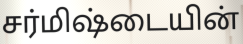
சர்மிஷ்டையின்